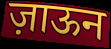
ज़ाऊन